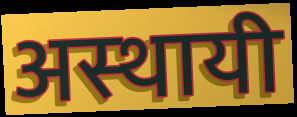
अस्थायी